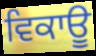
ਵਿਕਾਊ